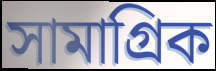
সামাগ্রিক